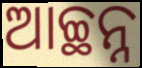
ଆଚ୍ଛନ୍ନ